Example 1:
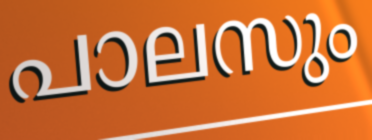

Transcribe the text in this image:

പാലസും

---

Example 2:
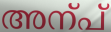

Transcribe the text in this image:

അന്പ്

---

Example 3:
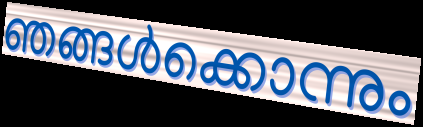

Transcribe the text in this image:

ഞങ്ങൾക്കൊന്നും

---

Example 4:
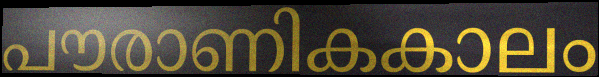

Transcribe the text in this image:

പൗരാണികകാലം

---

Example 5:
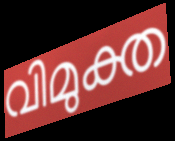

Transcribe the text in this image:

വിമുക്ത